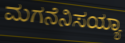
ಮಗನೆನಿಸಯ್ಯಾ